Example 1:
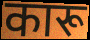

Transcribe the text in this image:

कारू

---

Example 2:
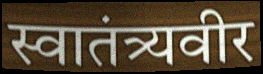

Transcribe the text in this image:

स्वातंत्र्यवीर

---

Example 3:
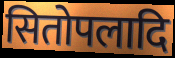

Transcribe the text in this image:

सितोपलादि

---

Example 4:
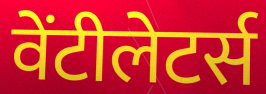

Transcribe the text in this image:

वेंटीलेटर्स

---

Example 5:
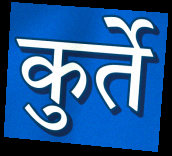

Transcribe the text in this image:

कुर्ते